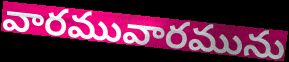
వారమువారమును